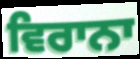
ਵਿਰਾਨਾ